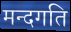
मन्दगति